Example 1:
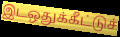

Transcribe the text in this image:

இடஒதுக்கீட்டுச்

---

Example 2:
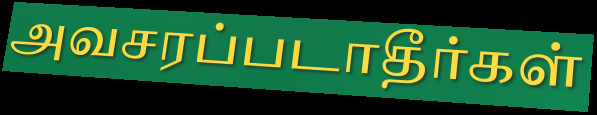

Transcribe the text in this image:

அவசரப்படாதீர்கள்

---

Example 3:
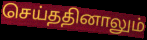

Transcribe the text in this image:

செய்ததினாலும்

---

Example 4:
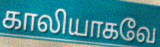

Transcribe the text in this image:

காலியாகவே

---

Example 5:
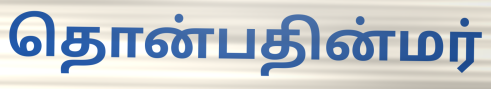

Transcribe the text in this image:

தொன்பதின்மர்